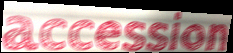
accession